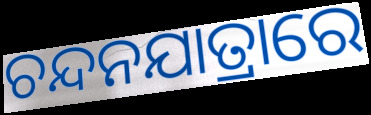
ଚନ୍ଦନଯାତ୍ରାରେ